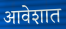
आवेशात